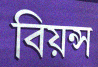
বিয়ন্স